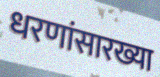
धरणांसारख्या